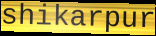
shikarpur